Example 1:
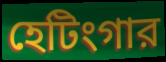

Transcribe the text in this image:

হেটিংগার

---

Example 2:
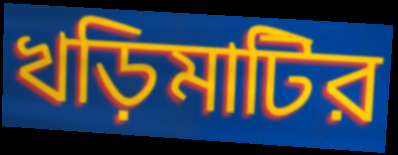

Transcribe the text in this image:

খড়িমাটির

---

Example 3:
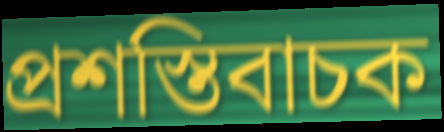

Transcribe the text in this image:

প্রশস্তিবাচক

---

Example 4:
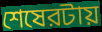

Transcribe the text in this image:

শেষেরটায়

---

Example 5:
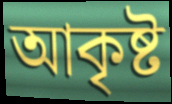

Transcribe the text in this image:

আকৃষ্ট